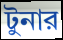
টুনার